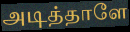
அடித்தாளே